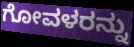
ಗೋವಳರನ್ನು